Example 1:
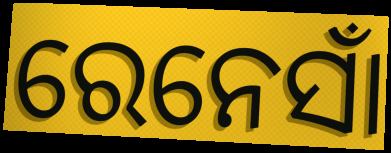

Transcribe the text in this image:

ରେନେସାଁ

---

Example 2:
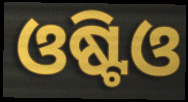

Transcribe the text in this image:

ଓଷ୍ଟିଓ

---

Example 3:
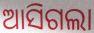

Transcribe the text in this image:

ଆସିଗଲା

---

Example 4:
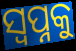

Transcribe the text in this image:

ସ୍ଵପ୍ନକୁ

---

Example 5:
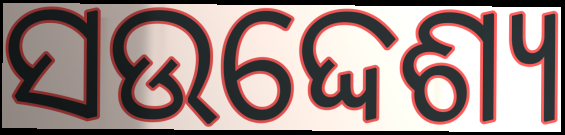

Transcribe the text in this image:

ସଉଦ୍ଦେଶ୍ୟ